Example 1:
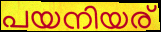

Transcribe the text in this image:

പയനിയര്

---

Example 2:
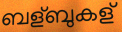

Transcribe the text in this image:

ബള്ബുകള്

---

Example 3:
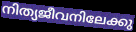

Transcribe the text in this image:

നിത്യജീവനിലേക്കു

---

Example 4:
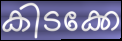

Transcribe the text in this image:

കിടക്കേ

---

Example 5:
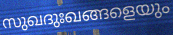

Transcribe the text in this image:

സുഖദുഃഖങ്ങളെയും